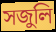
সজুলি